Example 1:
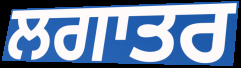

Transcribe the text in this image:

ਲਗਾਤਰ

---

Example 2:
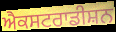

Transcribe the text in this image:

ਐਕਸਟਰਾਡੀਸ਼ਨ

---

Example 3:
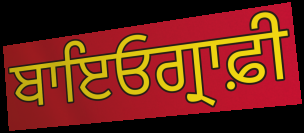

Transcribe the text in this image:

ਬਾਇਓਗ੍ਰਾਫ਼ੀ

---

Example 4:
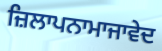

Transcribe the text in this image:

ਜ਼ਿਲਾਪਨਾਮਾਜਾਵੇਦ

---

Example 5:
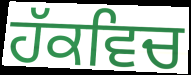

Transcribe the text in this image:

ਹੱਕਵਿਚ